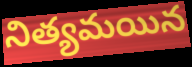
నిత్యమయిన